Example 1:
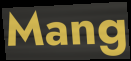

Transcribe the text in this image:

Mang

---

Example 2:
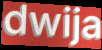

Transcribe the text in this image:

dwija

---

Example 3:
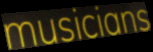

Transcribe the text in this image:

musicians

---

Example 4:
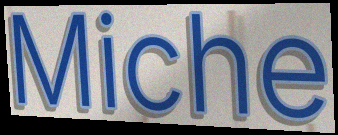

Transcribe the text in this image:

Miche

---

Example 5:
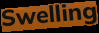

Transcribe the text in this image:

Swelling